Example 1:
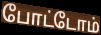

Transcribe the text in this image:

போட்டோம்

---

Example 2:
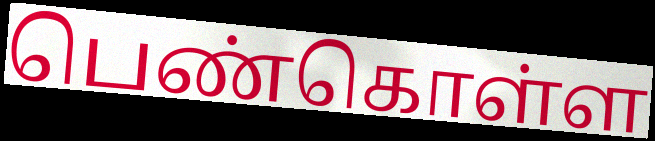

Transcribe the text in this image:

பெண்கொள்ள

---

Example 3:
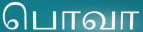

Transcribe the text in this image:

பொவா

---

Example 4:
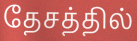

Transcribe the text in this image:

தேசத்தில்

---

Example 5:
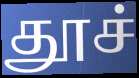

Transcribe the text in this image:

தூச்